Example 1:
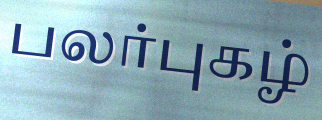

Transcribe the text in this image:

பலர்புகழ்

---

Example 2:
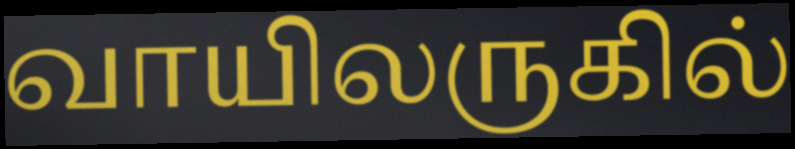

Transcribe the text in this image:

வாயிலருகில்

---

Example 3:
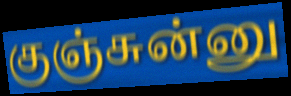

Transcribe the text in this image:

குஞ்சுன்னு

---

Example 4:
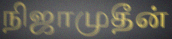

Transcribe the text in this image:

நிஜாமுதீன்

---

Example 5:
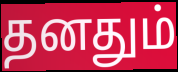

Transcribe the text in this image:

தனதும்